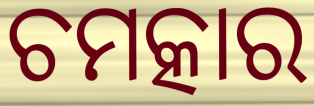
ଚମତ୍କାର